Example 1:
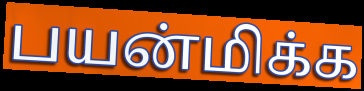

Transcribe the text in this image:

பயன்மிக்க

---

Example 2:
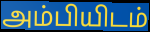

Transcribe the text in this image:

அம்பியிடம்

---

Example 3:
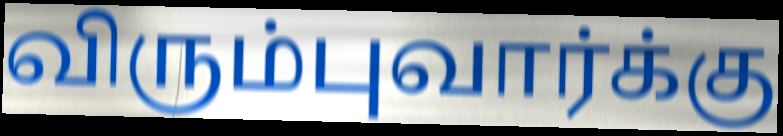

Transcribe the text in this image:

விரும்புவார்க்கு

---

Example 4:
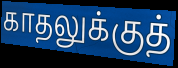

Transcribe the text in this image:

காதலுக்குத்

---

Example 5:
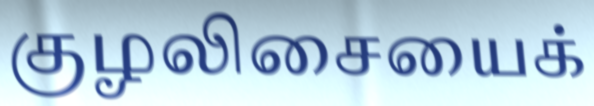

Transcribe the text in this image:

குழலிசையைக்